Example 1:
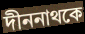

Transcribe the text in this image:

দীননাথকে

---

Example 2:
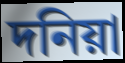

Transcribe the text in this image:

দনিয়া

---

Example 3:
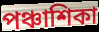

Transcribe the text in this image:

পঞ্চাশিকা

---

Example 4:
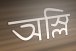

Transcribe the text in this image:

অস্লি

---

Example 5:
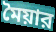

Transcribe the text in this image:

মৈয়ার